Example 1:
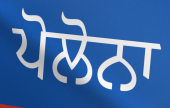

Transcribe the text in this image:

ਪੋਲੋਨਾ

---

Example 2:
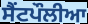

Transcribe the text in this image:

ਸੈਂਟਪੌਲੀਆ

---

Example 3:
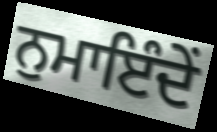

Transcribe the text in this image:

ਨੁਮਾਇੰਦੇਂ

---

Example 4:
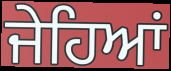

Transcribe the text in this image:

ਜੇਹਿਆਂ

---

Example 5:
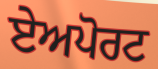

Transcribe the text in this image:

ਏਅਪੋਰਟ